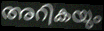
അറികയും